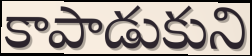
కాపాడుకుని